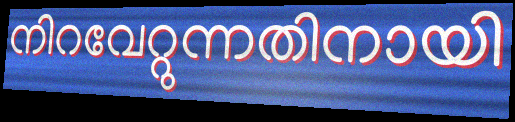
നിറവേറ്റുന്നതിനായി